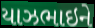
યાઝભાઇને